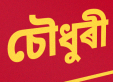
চৌধুৰী